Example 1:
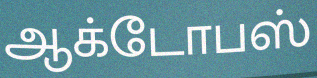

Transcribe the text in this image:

ஆக்டோபஸ்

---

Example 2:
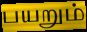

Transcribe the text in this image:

பயறும்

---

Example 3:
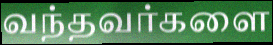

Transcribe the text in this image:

வந்தவர்களை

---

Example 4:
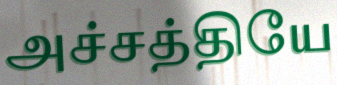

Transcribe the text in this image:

அச்சத்தியே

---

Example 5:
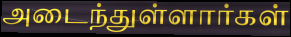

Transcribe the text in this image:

அடைந்துள்ளார்கள்